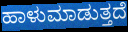
ಹಾಳುಮಾಡುತ್ತದೆ